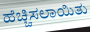
ಹೆಚ್ಚಿಸಲಾಯಿತು